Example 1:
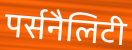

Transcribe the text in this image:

पर्सनैलिटी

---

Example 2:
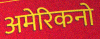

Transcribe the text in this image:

अमेरिकनो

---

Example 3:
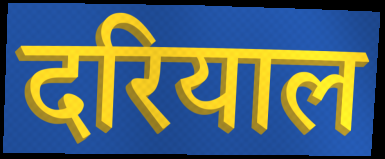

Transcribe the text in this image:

दरियाल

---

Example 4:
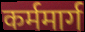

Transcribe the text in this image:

कर्ममार्ग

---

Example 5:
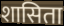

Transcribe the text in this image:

शासिता